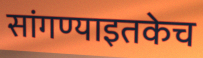
सांगण्याइतकेच